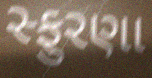
સ્ફુરણા